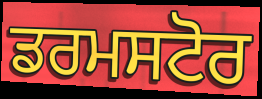
ਡਰਮਸਟੋਰ